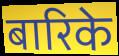
बारिके